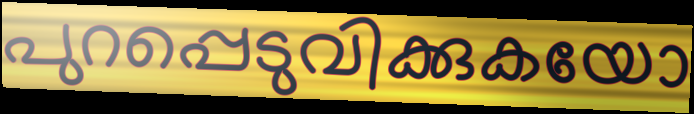
പുറപ്പെടുവിക്കുകയോ